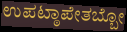
ಉಪಟ್ಠಾಪೇತಬ್ಬೋ